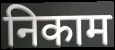
निकाम